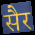
सैर